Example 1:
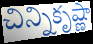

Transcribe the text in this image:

చిన్నికృష్ణా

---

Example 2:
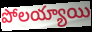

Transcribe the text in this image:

పోలయ్యాయి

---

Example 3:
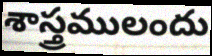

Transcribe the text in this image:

శాస్త్రములందు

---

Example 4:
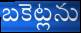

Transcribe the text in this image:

బకెట్లను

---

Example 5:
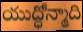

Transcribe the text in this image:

యుద్ధోన్మాది